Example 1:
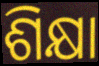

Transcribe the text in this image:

ଶିକ୍ଷା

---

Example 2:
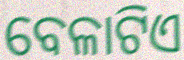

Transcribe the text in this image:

ବେଳାଟିଏ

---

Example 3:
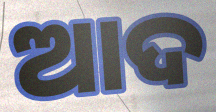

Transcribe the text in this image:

ଆଦ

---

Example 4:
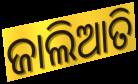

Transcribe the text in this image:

ଜାଲିଆତି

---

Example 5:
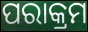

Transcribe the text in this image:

ପରାକ୍ରମ